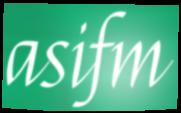
asifm